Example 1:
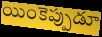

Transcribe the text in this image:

యింకెప్పుడూ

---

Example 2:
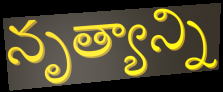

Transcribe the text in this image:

నృత్యాన్ని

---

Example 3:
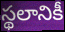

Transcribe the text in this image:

స్థలానికీ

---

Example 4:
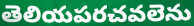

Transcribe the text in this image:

తెలియపరచవలెను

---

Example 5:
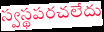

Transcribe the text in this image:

స్వస్థపరచలేదు